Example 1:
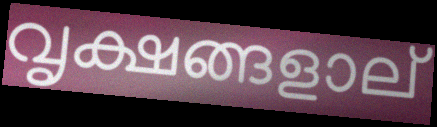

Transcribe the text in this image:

വൃക്ഷങ്ങളാല്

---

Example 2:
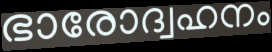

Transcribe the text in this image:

ഭാരോദ്വഹനം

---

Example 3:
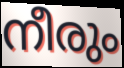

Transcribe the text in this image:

നീരും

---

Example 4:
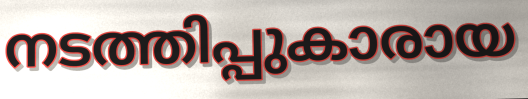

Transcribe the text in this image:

നടത്തിപ്പുകാരായ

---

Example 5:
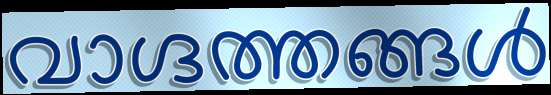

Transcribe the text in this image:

വാഗ്ദത്തങ്ങൾ